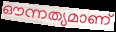
ഔന്നത്യമാണ്